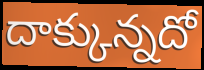
దాక్కున్నదో